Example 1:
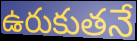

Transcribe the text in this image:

ఉరుకుతనే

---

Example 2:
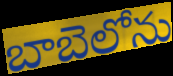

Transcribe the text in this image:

బాబెలోను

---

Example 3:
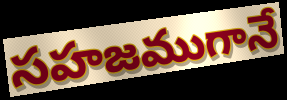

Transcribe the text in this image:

సహజముగానే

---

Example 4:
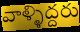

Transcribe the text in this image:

వాళ్ళిద్దరు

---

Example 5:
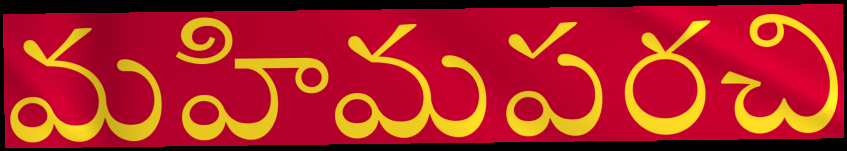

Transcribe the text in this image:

మహిమపరచి